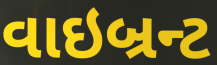
વાઇબ્રન્ટ